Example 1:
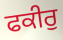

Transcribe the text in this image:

ਫਕੀਰੁ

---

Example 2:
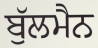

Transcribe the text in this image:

ਬੁੱਲਮੈਨ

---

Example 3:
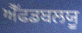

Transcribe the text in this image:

ਐੱਫਡਬਲਯੂ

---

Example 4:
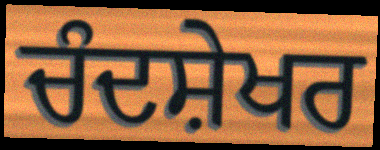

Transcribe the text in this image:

ਚੰਦਸ਼ੇਖਰ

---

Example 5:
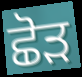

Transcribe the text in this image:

ਛੋੜ